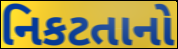
નિકટતાનો